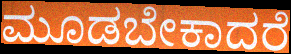
ಮೂಡಬೇಕಾದರೆ